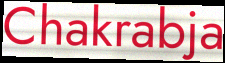
Chakrabja